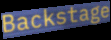
Backstage